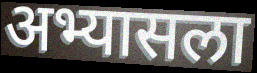
अभ्यासला